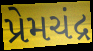
પ્રેમચંદ્ર